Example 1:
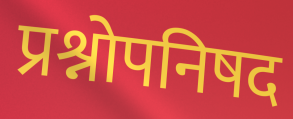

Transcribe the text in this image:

प्रश्नोपनिषद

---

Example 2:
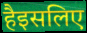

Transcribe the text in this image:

हैइसलिए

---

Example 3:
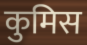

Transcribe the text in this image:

कुमिस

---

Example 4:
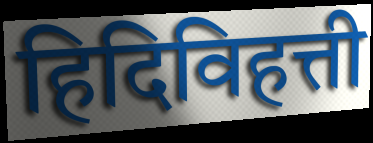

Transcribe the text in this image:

हिदिविहत्ती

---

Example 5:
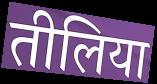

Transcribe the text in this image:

तीलिया